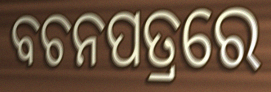
ବଚନପତ୍ରରେ